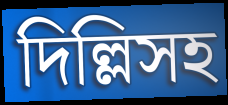
দিল্লিসহ